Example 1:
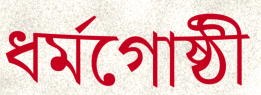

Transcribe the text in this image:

ধৰ্মগোষ্ঠী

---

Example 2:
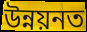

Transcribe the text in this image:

উন্নয়নত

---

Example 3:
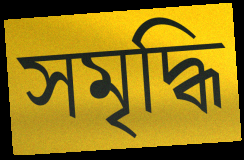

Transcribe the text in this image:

সমৃদ্ধি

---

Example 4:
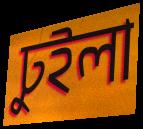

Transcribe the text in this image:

ঢুইলা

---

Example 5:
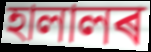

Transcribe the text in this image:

হালালৰ